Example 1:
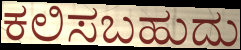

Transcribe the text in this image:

ಕಲಿಸಬಹುದು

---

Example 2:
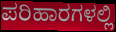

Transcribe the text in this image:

ಪರಿಹಾರಗಳಲ್ಲಿ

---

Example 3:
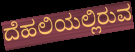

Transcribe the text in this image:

ದೆಹಲಿಯಲ್ಲಿರುವ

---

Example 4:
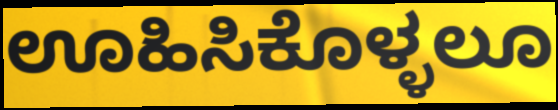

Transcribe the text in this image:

ಊಹಿಸಿಕೊಳ್ಳಲೂ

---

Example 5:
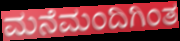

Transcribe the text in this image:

ಮನೆಮಂದಿಗಿಂತ